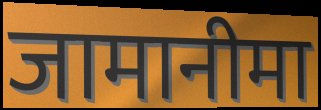
जामानीमा